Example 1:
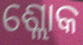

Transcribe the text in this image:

ଶ୍ଲୋକ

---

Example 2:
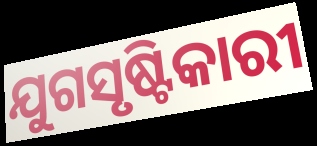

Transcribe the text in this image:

ଯୁଗସୃଷ୍ଟିକାରୀ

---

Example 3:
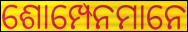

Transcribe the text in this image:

ଶୋମ୍ପେନମାନେ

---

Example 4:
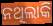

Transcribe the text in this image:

ନଥିଲାକି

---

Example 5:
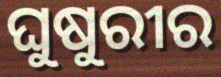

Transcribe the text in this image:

ଘୁଷୁରୀର